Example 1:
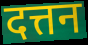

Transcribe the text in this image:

दत्तन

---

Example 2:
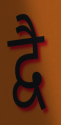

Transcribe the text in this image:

द्वै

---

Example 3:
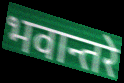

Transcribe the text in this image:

भवान्तरे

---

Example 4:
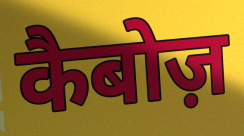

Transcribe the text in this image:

कैबोज़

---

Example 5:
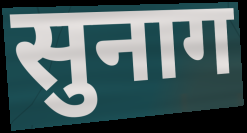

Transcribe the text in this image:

सुनाग